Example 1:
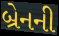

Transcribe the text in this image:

બ્રેનની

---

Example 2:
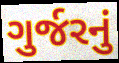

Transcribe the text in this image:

ગુર્જરનું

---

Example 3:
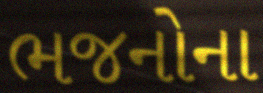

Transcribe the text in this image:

ભજનોના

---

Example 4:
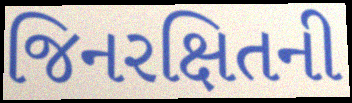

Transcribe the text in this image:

જિનરક્ષિતની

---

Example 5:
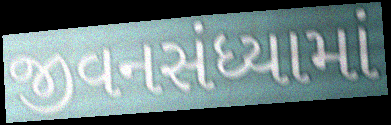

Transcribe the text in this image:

જીવનસંધ્યામાં